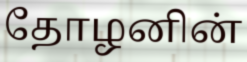
தோழனின்